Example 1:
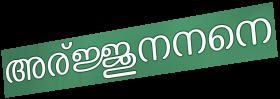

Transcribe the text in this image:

അര്ജ്ജുനനനെ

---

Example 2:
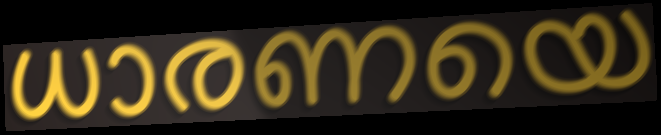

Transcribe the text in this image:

ധാരണയെ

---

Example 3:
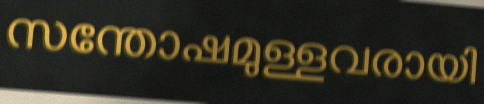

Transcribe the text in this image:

സന്തോഷമുള്ളവരായി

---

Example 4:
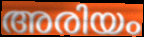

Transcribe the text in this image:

അരിയം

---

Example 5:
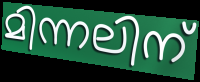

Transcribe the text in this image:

മിന്നലിന്